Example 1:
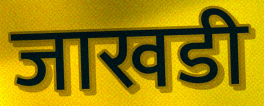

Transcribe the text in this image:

जाखडी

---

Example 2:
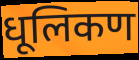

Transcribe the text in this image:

धूलिकण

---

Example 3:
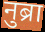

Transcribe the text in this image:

नुब्रा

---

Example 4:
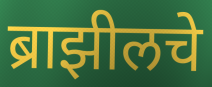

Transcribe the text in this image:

ब्राझीलचे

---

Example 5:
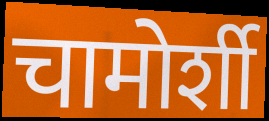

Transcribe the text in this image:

चामोर्शी